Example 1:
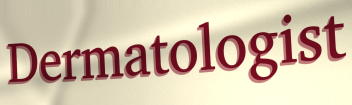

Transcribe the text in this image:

Dermatologist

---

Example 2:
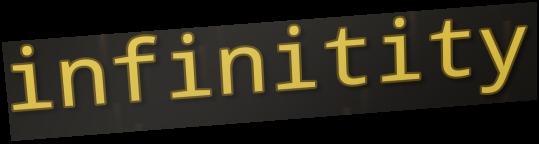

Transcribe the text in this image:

infinitity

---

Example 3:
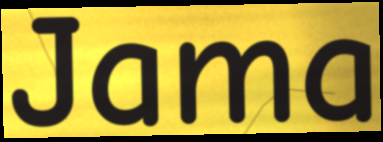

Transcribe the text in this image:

Jama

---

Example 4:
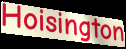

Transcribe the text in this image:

Hoisington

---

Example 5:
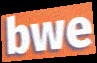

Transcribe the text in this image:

bwe